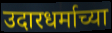
उदारधर्माच्या